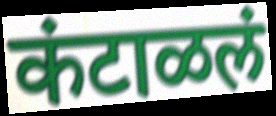
कंटाळलं